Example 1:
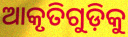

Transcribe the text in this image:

ଆକୃତିଗୁଡ଼ିକୁ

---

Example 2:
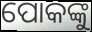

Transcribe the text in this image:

ପୋକଙ୍କୁ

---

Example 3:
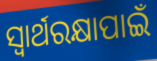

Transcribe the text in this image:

ସ୍ୱାର୍ଥରକ୍ଷାପାଇଁ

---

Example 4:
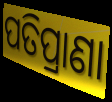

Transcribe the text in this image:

ପତିପ୍ରାଣା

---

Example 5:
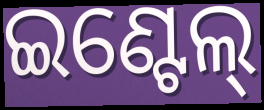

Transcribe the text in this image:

ଇଣ୍ଟେଲ୍